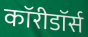
कॉरीडॉर्स